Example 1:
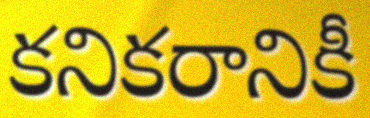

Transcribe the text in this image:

కనికరానికీ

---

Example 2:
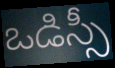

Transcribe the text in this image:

ఒడిస్సీ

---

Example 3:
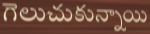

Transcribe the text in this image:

గెలుచుకున్నాయి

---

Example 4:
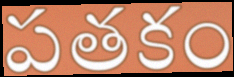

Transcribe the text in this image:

పతకం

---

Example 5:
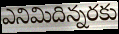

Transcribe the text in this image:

ఎనిమిదిన్నరకు